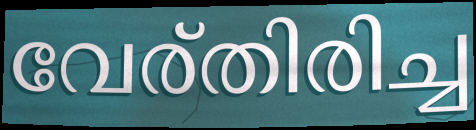
വേര്തിരിച്ച